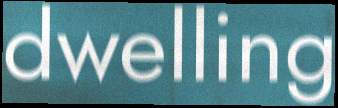
dwelling